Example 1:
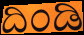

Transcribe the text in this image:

ದಿಂಡಿ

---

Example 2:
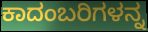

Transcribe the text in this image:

ಕಾದಂಬರಿಗಳನ್ನ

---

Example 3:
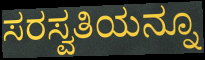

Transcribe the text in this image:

ಸರಸ್ವತಿಯನ್ನೂ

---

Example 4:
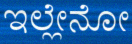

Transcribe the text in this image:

ಇಲ್ಲೇನೋ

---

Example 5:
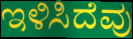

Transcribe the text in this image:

ಇಳಿಸಿದೆವು